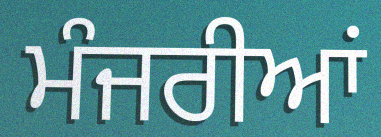
ਮੰਜਰੀਆਂ